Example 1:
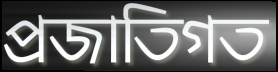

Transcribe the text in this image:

প্রজাতিগত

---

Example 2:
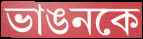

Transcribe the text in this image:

ভাঙনকে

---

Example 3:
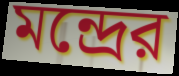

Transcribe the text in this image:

মন্দ্রের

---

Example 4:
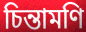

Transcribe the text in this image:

চিন্তামণি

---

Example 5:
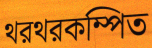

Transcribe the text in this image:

থরথরকম্পিত